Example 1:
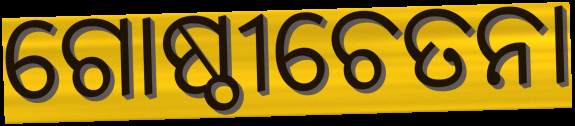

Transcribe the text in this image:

ଗୋଷ୍ଠୀଚେତନା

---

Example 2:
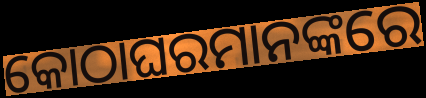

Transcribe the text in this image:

କୋଠାଘରମାନଙ୍କରେ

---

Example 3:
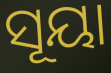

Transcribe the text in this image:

ସୂୟା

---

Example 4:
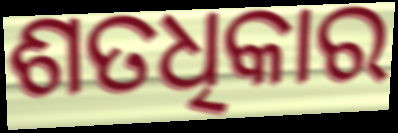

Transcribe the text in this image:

ଶତଧିକାର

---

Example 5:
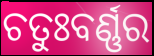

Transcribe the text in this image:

ଚତୁଃବର୍ଣ୍ଣର